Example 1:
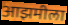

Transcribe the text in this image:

आझमीला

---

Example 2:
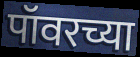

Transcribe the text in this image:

पॉवरच्या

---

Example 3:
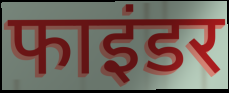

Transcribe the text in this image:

फाइंडर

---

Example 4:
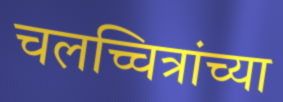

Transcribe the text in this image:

चलच्चित्रांच्या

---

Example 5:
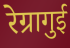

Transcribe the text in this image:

रेग्रागुई